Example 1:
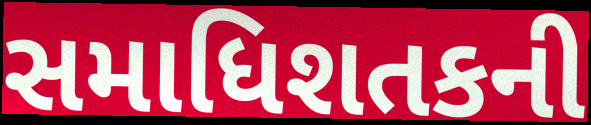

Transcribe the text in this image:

સમાધિશતકની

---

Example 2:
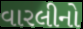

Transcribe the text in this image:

વારલીનો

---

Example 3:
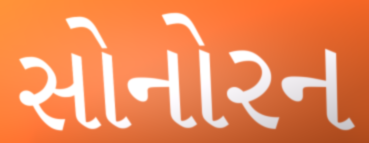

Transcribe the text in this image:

સોનોરન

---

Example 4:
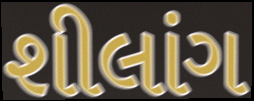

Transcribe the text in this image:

શીલાંગ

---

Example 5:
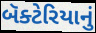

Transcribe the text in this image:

બૅક્ટેરિયાનું